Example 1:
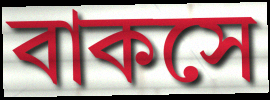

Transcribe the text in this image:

বাকসে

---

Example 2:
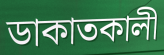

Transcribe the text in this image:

ডাকাতকালী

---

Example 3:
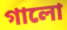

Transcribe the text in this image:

গালো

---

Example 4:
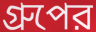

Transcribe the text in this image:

গ্রুপের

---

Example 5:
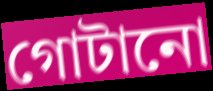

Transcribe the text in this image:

গোটানো